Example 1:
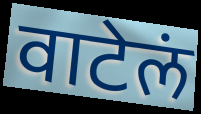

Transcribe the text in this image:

वाटेलं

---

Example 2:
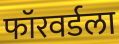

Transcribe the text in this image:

फॉरवर्डला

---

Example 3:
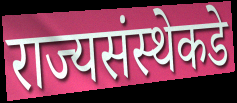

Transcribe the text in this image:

राज्यसंस्थेकडे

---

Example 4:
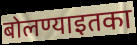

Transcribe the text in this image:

बोलण्याइतका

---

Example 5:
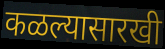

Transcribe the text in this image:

कळल्यासारखी